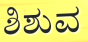
ಶಿಶುವ